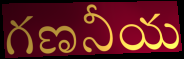
గణనీయ